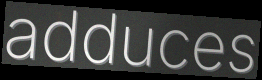
adduces